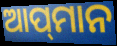
ଆପ୍‌ମାନ